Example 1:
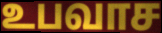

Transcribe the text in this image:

உபவாச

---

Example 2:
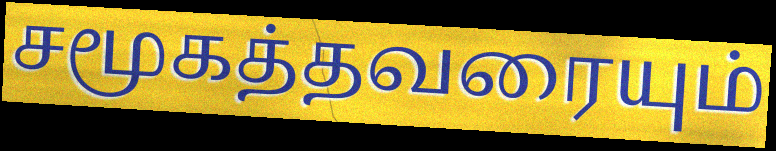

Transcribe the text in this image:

சமூகத்தவரையும்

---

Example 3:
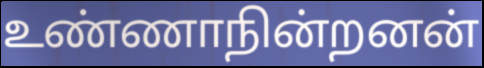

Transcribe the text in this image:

உண்ணாநின்றனன்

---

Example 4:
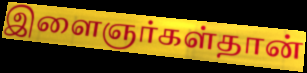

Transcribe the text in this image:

இளைஞர்கள்தான்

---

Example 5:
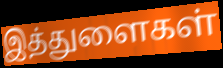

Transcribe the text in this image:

இத்துளைகள்